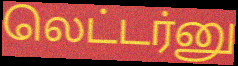
லெட்டர்னு